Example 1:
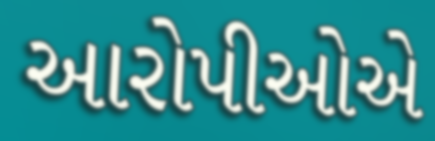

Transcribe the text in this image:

આરોપીઓએ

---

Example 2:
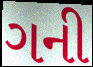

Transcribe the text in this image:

ગની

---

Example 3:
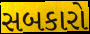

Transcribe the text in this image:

સબકારો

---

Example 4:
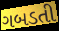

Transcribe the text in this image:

ગબડતી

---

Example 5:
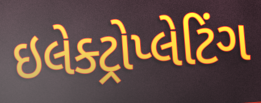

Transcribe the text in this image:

ઇલેક્ટ્રોપ્લેટિંગ